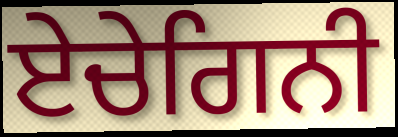
ਏਚੇਗਿਨੀ